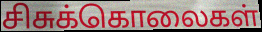
சிசுக்கொலைகள்